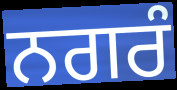
ਨਗਰੰ